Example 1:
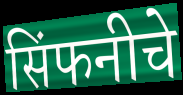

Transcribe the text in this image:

सिंफनीचे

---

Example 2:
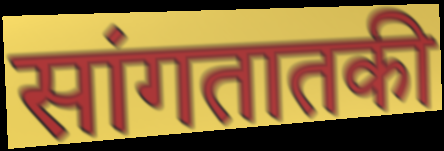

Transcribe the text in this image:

सांगतातकी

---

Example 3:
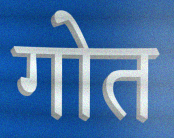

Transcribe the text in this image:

गोत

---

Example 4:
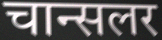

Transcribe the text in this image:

चान्सलर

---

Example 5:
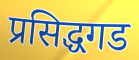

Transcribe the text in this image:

प्रसिद्धगड